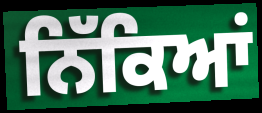
ਨਿੱਕਿਆਂ